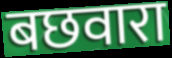
बछवारा